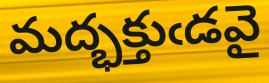
మద్భక్తుఁడవై